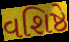
વશિષ્ઠે